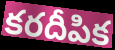
కరదీపిక